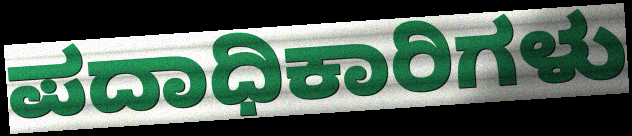
ಪದಾಧಿಕಾರಿಗಳು